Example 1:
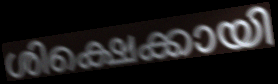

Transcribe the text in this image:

ശിക്ഷെക്കായി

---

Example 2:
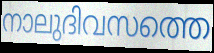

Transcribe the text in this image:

നാലുദിവസത്തെ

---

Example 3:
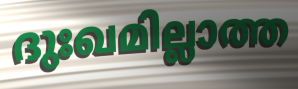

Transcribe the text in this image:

ദുഃഖമില്ലാത്ത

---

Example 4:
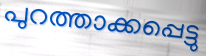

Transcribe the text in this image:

പുറത്താക്കപ്പെട്ടു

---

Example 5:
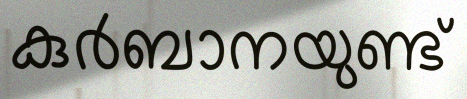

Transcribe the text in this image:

കുർബാനയുണ്ട്